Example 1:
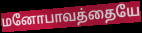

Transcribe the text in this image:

மனோபாவத்தையே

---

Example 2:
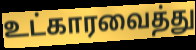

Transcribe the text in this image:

உட்காரவைத்து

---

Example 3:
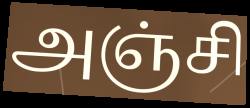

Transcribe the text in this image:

அஞ்சி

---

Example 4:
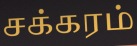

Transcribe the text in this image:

சக்கரம்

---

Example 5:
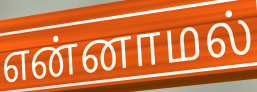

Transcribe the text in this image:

என்னாமல்